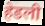
हेडली